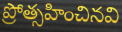
ప్రోత్సహించినవి